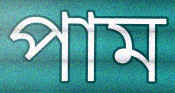
পাম